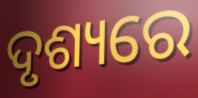
ଦୃଶ୍ୟରେ